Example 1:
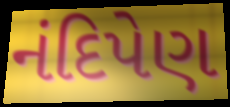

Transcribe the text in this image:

નંદિપેણ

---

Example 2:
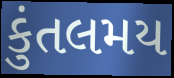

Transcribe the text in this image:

કુંતલમય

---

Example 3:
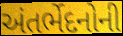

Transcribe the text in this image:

અંતર્ભેદનોની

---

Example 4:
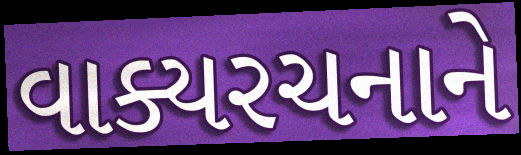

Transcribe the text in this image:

વાક્યરચનાને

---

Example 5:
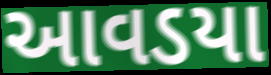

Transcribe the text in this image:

આવડયા